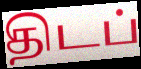
திடப்